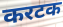
करटक